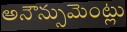
అనౌన్సుమెంట్లు